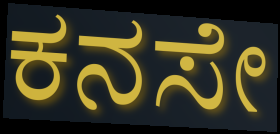
ಕನಸೇ